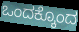
ಒಂದಕ್ಕೊಂದ